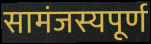
सामंजस्यपूर्ण